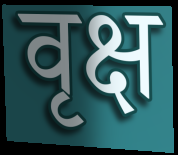
वृक्ष